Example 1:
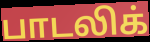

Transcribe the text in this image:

பாடலிக்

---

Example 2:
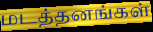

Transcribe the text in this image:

மடத்தனங்கள்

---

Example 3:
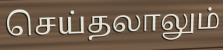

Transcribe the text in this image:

செய்தலாலும்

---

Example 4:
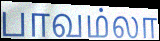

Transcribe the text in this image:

பாவம்லா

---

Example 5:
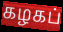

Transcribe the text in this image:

கழகப்